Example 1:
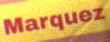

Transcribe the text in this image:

Marquez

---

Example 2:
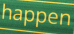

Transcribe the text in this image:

happen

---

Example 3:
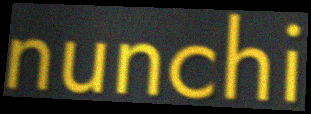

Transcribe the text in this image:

nunchi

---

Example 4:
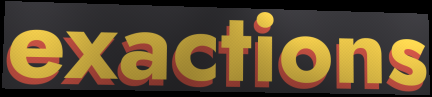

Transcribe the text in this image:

exactions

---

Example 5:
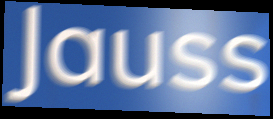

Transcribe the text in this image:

Jauss